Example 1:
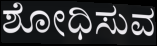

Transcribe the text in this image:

ಶೋಧಿಸುವ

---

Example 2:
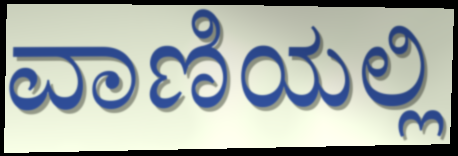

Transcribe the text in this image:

ವಾಣಿಯಲ್ಲಿ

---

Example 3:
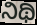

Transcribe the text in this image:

ನಿಥಿ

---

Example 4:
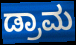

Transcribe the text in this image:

ಡ್ರಾಮ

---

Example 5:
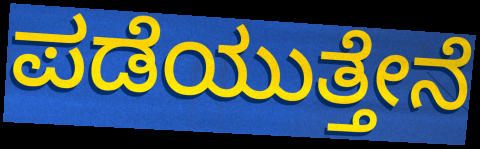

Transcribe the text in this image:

ಪಡೆಯುತ್ತೇನೆ